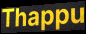
Thappu